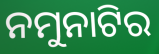
ନମୁନାଟିର